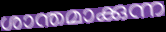
ശാന്തമാക്കുന്ന